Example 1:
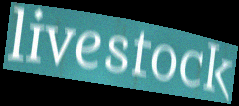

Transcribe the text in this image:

livestock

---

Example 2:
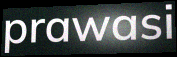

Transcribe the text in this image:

prawasi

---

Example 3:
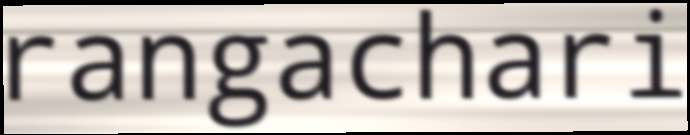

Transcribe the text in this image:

rangachari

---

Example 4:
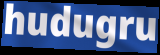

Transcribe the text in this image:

hudugru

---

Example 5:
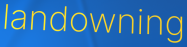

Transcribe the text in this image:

landowning